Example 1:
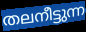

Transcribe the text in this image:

തലനീട്ടുന്ന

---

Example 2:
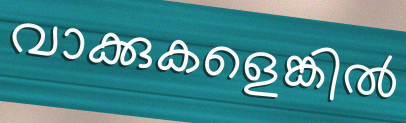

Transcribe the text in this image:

വാക്കുകളെങ്കിൽ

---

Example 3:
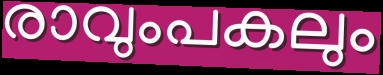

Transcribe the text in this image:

രാവുംപകലും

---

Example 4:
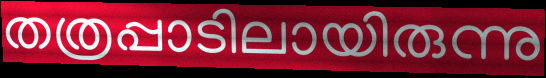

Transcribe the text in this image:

തത്രപ്പാടിലായിരുന്നു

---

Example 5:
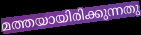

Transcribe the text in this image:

മത്തയായിരിക്കുന്നതു